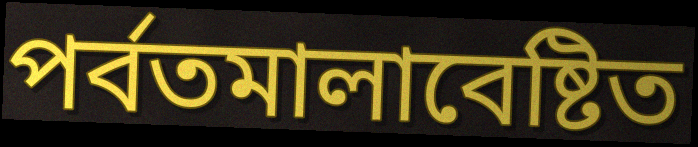
পর্বতমালাবেষ্টিত